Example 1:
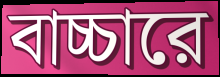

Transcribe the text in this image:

বাচ্চারে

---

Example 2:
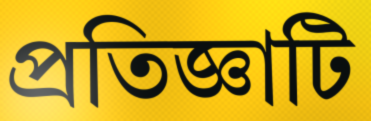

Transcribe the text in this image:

প্রতিজ্ঞাটি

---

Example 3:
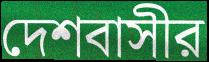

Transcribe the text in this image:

দেশবাসীর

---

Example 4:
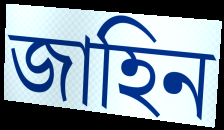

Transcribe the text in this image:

জাহিন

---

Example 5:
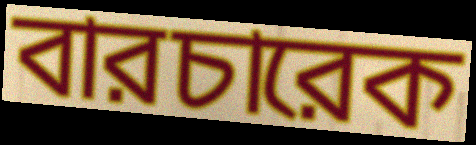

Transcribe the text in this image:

বারচারেক